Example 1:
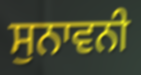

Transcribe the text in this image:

ਸੁਨਾਵਨੀ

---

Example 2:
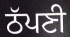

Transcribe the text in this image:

ਠੱਪਣੀ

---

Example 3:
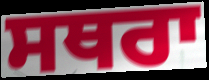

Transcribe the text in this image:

ਸਥਰਾ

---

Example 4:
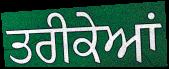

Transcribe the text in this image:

ਤਰੀਕੇਆਂ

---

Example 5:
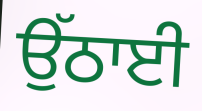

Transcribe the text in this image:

ਉੱਠਾਈ